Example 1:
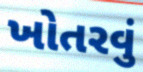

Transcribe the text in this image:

ખોતરવું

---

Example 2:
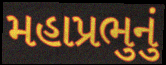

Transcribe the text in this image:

મહાપ્રભુનું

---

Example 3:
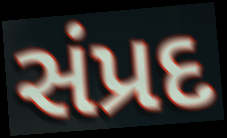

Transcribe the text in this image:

સંપ્રદ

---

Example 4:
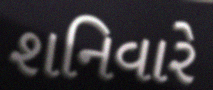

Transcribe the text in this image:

શનિવારે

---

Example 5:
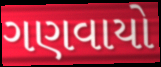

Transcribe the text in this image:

ગણવાયો